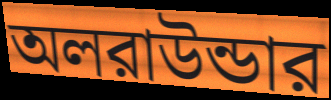
অলরাউন্ডার